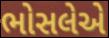
ભોસલેએ